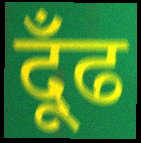
दूँढ